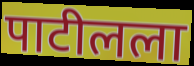
पाटीलला